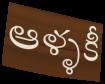
ఆళ్ళకీ